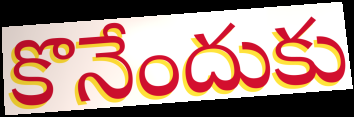
కొనేందుకు